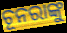
ଚୂନରାଙ୍କୁ